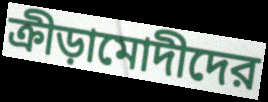
ক্রীড়ামোদীদের